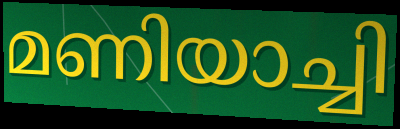
മണിയാച്ചി